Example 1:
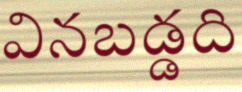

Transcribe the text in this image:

వినబడ్డది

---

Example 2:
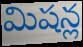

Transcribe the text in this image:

మిషన్ల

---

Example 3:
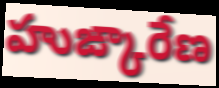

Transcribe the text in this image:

హుఙ్కారేణ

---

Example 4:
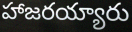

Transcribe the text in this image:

హాజరయ్యారు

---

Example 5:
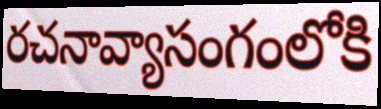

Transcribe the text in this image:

రచనావ్యాసంగంలోకి